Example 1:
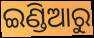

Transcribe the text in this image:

ଇଣ୍ଡିଆରୁ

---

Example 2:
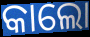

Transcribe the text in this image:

କାଲୋ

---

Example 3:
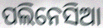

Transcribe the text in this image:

ପଲିନେସିଆ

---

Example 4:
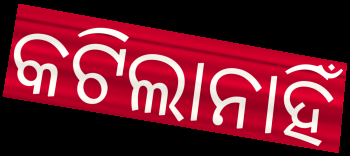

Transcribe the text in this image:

କଟିଲାନାହିଁ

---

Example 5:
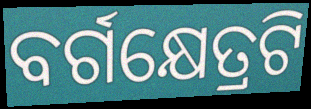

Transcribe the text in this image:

ବର୍ଗକ୍ଷେତ୍ରଟି